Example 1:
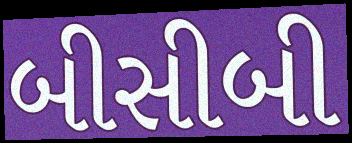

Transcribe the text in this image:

બીસીબી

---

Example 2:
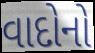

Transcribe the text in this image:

વાદોનો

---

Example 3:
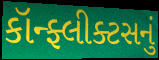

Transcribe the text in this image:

કૉન્ફ્લીક્ટસનું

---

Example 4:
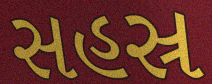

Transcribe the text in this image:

સહસ્ર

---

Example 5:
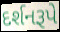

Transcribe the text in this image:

દર્શનરૂપે